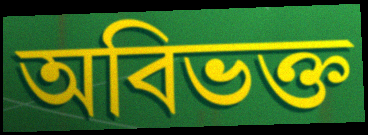
অবিভক্ত